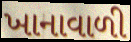
ખાનાવાળી